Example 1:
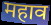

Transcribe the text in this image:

महाव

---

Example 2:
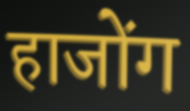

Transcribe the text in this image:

हाजोंग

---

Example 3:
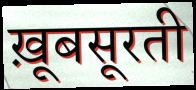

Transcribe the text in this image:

ख़ूबसूरती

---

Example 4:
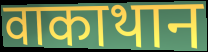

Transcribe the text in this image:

वाकाथान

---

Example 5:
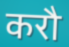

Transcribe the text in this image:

करौ